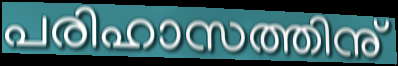
പരിഹാസത്തിനു്